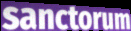
sanctorum